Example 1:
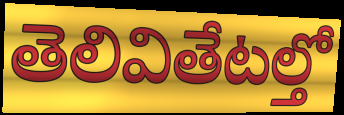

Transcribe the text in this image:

తెలివితేటల్తో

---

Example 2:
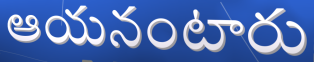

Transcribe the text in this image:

ఆయనంటారు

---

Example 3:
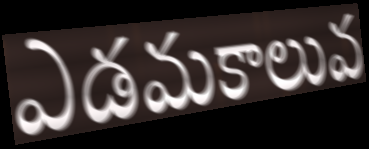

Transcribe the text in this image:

ఎడమకాలువ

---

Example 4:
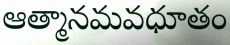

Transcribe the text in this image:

ఆత్మానమవధూతం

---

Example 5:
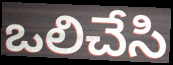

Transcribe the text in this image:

ఒలిచేసి